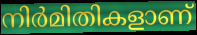
നിർമിതികളാണ്